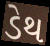
ડેથ